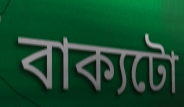
বাক্যটো